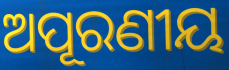
ଅପୂରଣୀୟ